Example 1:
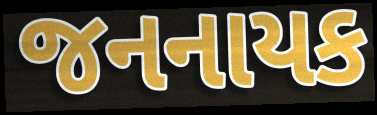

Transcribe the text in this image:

જનનાયક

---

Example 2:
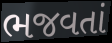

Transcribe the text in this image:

ભજવતાં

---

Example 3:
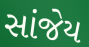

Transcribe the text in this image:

સાંજેય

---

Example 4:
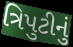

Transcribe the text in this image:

ત્રિપુટીનું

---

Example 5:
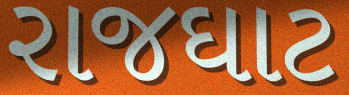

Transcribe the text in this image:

રાજઘાટ